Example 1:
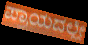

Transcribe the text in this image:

ಪ್ರಾಯದಲ್ಲೇ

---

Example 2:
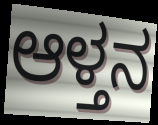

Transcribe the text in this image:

ಆಳ್ತನ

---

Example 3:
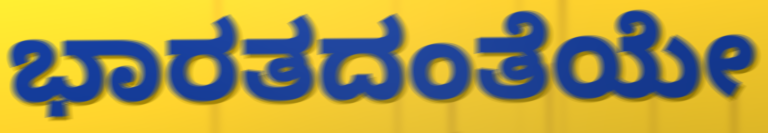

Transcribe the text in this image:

ಭಾರತದಂತೆಯೇ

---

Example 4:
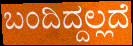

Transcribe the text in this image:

ಬಂದಿದ್ದಲ್ಲದೆ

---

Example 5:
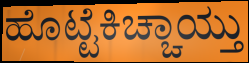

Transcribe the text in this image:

ಹೊಟ್ಟೆಕಿಚ್ಚಾಯ್ತು